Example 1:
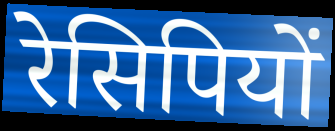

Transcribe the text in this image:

रेसिपियों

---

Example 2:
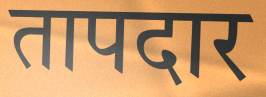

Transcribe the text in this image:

तापदार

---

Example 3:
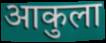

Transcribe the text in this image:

आकुला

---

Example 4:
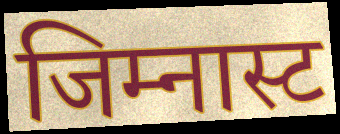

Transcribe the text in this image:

जिम्नास्ट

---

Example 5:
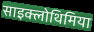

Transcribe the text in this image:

साइक्लोथिमिया